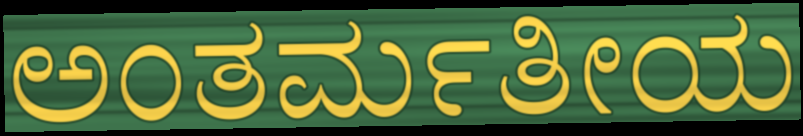
ಅಂತರ್ಮತೀಯ